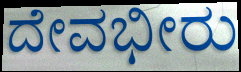
ದೇವಭೀರು